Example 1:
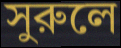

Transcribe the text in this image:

সুরুলে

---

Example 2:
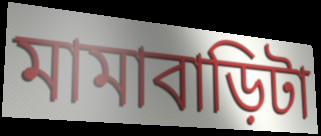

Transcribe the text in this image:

মামাবাড়িটা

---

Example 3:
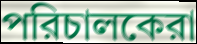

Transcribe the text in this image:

পরিচালকেরা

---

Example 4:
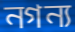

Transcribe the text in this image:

নগন্য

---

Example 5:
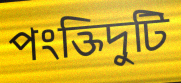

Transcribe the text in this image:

পংক্তিদুটি